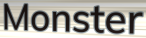
Monster